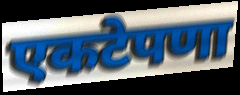
एकटेपणा